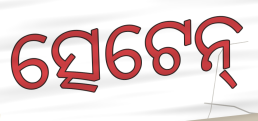
ତ୍ସେଟେନ୍